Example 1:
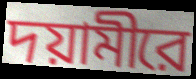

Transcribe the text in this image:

দয়ামীরে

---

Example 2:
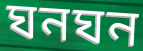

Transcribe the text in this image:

ঘনঘন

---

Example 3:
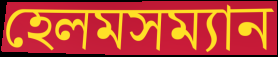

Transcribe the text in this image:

হেলমসম্যান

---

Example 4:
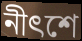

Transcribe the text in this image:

নীৎশে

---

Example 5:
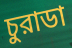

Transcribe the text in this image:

চুরাডা